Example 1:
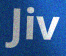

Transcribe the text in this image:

Jiv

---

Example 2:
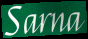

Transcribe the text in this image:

Sarna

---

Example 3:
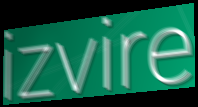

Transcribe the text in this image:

izvire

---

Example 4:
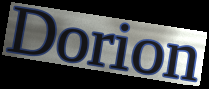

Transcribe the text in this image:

Dorion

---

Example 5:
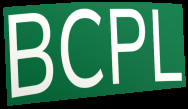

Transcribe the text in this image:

BCPL